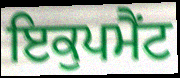
ਇਕੁਪਮੈਂਟ